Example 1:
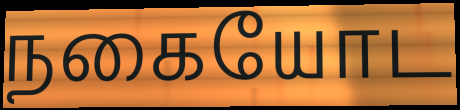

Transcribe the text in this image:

நகையோட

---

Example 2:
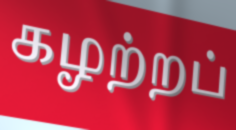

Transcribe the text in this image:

கழற்றப்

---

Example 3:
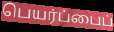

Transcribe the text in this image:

பெயர்ப்பைப்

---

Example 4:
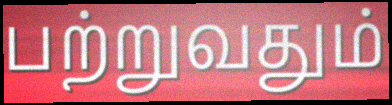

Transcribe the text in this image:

பற்றுவதும்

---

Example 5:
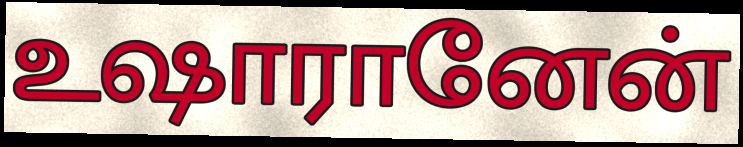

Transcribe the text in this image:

உஷாரானேன்